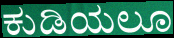
ಕುಡಿಯಲೂ